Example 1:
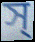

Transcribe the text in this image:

স্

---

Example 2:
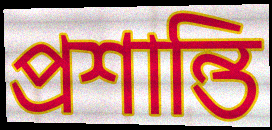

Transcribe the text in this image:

প্ৰশান্তি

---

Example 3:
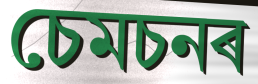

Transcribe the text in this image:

চেমচনৰ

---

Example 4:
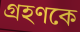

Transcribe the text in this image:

গ্ৰহণকে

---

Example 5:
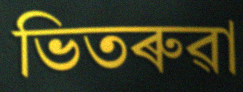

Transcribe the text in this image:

ভিতৰুৱা